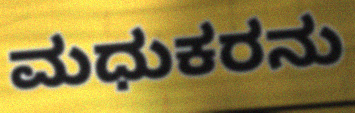
ಮಧುಕರನು